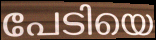
പേടിയെ